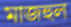
মাজহুল